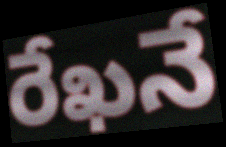
రేఖనే